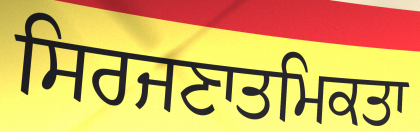
ਸਿਰਜਣਾਤਮਿਕਤਾ